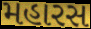
મહારસ